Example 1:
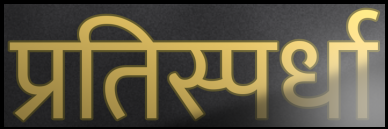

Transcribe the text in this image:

प्रतिस्पर्धा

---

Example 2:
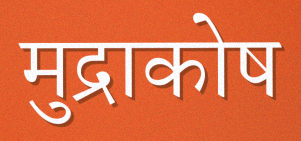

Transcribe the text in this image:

मुद्राकोष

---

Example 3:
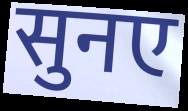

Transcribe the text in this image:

सुनए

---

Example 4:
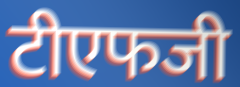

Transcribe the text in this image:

टीएफजी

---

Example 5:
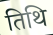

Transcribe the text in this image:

तिथि